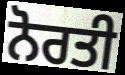
ਨੋਰਤੀ